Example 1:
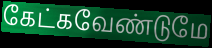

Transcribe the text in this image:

கேட்கவேண்டுமே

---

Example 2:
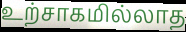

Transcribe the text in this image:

உற்சாகமில்லாத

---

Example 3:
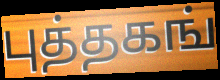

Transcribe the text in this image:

புத்தகங்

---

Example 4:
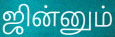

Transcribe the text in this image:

ஜின்னும்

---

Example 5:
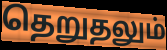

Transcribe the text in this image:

தெறுதலும்